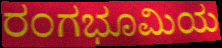
ರಂಗಭೂಮಿಯ